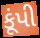
કૂંપી